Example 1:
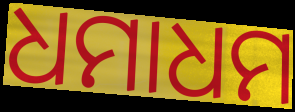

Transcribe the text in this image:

ଧମାଧମ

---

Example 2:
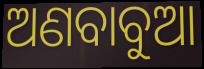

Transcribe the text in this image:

ଅଣବାବୁଆ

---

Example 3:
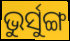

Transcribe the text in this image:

ଭୁର୍ସୁଙ୍ଗ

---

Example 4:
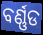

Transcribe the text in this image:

ବର୍ଣ୍ଣଡ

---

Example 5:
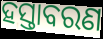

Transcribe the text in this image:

ହସ୍ତାବରଣ